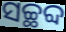
ସଚ୍ଛବ୍ଦ